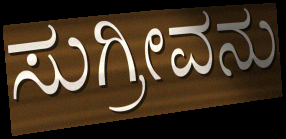
ಸುಗ್ರೀವನು